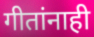
गीतांनाही